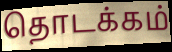
தொடக்கம்